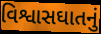
વિશ્વાસઘાતનું